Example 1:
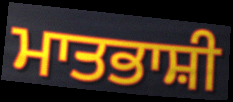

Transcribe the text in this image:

ਮਾਤਭਾਸ਼ੀ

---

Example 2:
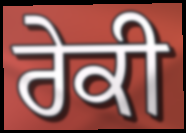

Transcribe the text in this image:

ਰੇਕੀ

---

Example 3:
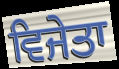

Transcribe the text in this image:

ਵਿਜੇਤਾ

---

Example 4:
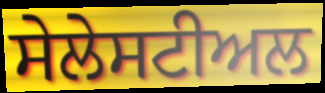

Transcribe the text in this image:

ਸੇਲੇਸਟੀਅਲ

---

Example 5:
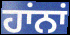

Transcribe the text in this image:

ਹਾਂਨਾਂ